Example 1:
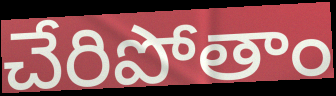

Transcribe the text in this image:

చేరిపోతాం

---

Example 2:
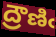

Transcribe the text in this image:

ద్రౌణిఁ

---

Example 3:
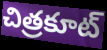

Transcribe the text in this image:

చిత్రకూట్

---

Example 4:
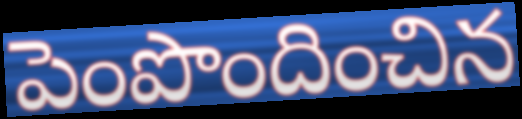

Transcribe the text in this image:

పెంపొందించిన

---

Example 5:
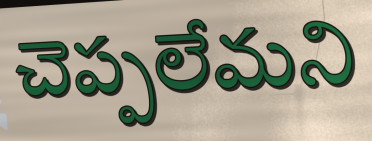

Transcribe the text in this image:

చెప్పలేమని